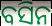
ବସିନ